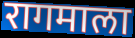
रागमाला